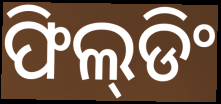
ଫିଲ୍‌ଡିଂ